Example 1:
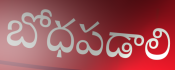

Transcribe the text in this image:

బోధపడాలి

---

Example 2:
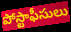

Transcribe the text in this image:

పోస్టాఫీసులు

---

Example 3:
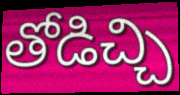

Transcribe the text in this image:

తోడిచ్చి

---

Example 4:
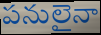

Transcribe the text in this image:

పనులైనా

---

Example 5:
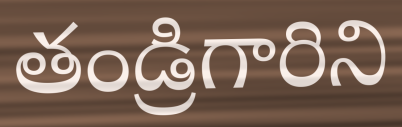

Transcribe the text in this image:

తండ్రిగారిని